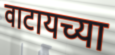
वाटायच्या